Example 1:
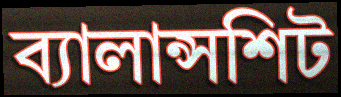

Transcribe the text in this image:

ব্যালান্সশিট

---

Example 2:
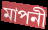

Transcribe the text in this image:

মাপনী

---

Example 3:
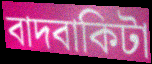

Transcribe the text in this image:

বাদবাকিটা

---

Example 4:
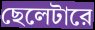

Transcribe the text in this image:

ছেলেটারে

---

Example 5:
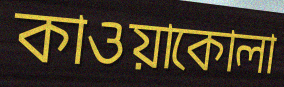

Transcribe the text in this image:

কাওয়াকোলা